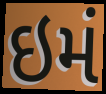
ઇમં